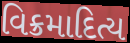
વિક્રમાદિત્ય